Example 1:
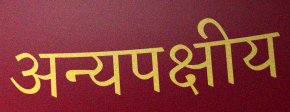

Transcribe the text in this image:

अन्यपक्षीय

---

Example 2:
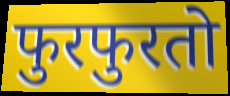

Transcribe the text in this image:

फुरफुरतो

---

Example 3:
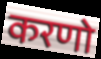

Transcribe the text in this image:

करणो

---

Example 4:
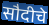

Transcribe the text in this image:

सौदीचे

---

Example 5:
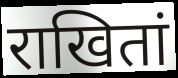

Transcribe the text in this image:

राखितां